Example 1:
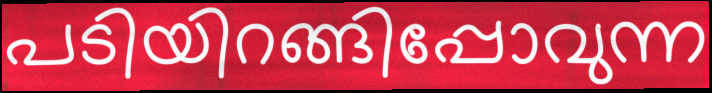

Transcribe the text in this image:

പടിയിറങ്ങിപ്പോവുന്ന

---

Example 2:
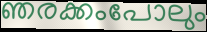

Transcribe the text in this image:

ഞരക്കംപോലും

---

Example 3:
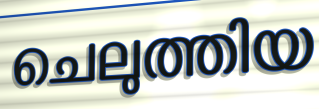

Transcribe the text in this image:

ചെലുത്തിയ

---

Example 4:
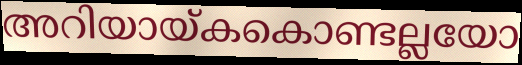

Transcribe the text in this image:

അറിയായ്കകൊണ്ടല്ലയോ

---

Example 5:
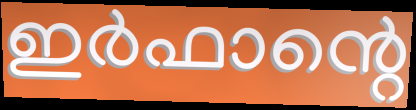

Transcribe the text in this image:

ഇർഫാന്റെ